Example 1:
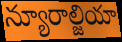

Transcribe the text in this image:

న్యూరాల్జియా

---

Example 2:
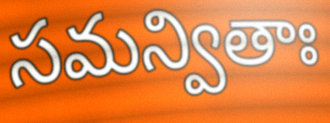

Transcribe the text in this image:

సమన్వితాః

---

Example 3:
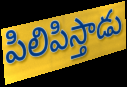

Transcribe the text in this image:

పిలిపిస్తాడు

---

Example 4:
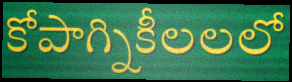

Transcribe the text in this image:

కోపాగ్నికీలలలో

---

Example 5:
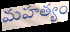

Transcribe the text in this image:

మహత్యం